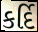
કર્દિ